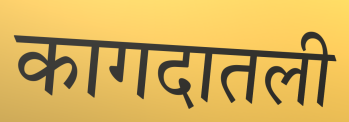
कागदातली